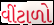
વીંટાળો